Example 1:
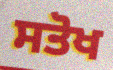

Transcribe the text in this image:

ਸਤੋਖ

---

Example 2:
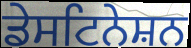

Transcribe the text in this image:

ਡੇਸਟਿਨੇਸ਼ਨ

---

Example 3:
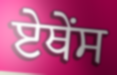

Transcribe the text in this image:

ਏਥੇੰਸ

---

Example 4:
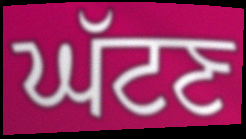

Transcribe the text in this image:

ਘੱਟਣ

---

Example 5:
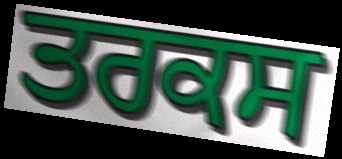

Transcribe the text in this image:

ਤਰਕਸ